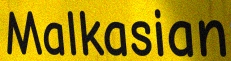
Malkasian